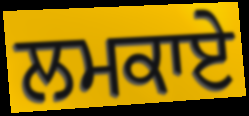
ਲਮਕਾਏ